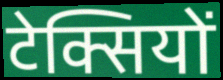
टेक्सियों